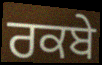
ਰਕਬੇ